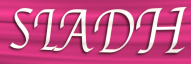
SIADH